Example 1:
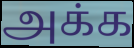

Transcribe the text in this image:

அக்க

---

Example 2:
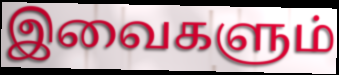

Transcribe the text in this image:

இவைகளும்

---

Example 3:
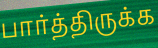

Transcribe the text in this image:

பார்த்திருக்க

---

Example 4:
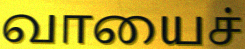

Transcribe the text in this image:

வாயைச்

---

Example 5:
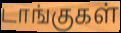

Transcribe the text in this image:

டாங்குகள்